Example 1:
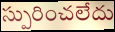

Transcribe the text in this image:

స్పురించలేదు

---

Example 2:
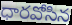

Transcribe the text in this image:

ధారవోసిన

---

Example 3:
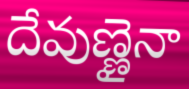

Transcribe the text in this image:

దేవుణ్ణైనా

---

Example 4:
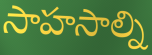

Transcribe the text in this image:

సాహసాల్ని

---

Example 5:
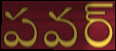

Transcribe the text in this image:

పవర్